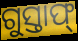
ଗୁସ୍ତାଫ୍